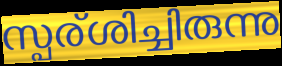
സ്പര്ശിച്ചിരുന്നു